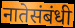
नातेसंबंधी